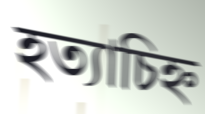
হত্যাচিহ্ন